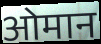
ओमान